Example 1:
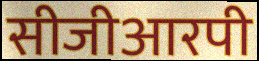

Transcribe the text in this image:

सीजीआरपी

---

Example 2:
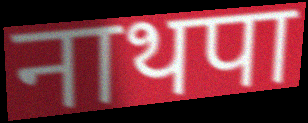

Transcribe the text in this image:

नाथपा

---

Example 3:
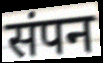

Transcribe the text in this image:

संपन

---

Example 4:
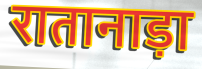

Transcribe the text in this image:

रातानाड़ा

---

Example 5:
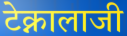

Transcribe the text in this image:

टेक्नालाजी